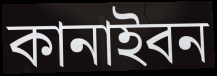
কানাইবন